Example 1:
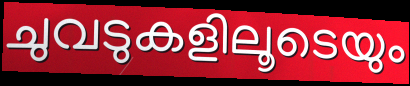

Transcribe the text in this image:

ചുവടുകളിലൂടെയും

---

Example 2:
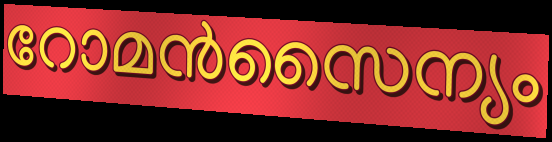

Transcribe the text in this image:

റോമൻസൈന്യം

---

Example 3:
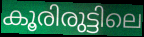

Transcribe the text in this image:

കൂരിരുട്ടിലെ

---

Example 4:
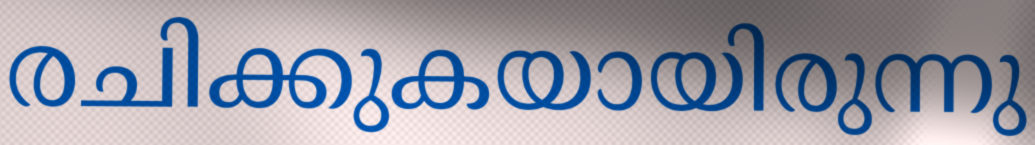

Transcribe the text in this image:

രചിക്കുകയായിരുന്നു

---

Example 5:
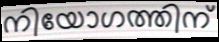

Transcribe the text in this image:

നിയോഗത്തിന്